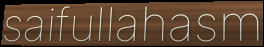
saifullahasm